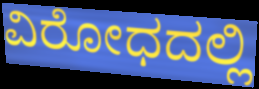
ವಿರೋಧದಲ್ಲಿ